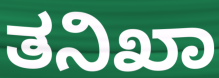
ತನಿಖಾ